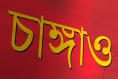
চাঙ্গাও